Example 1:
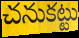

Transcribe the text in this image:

చనుకట్టు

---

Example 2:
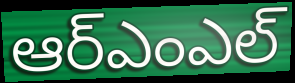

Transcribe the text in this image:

ఆర్ఎంఎల్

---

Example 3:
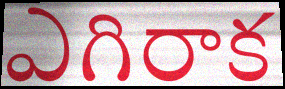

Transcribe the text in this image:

ఎగిరాక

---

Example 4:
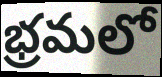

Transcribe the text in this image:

భ్రమలో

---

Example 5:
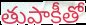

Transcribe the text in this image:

తుపాకీతో